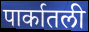
पार्कातली